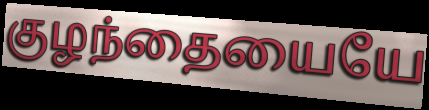
குழந்தையையே